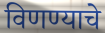
विणण्याचे